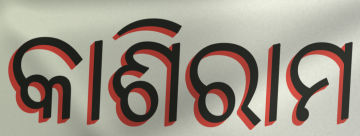
କାଶିରାମ